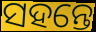
ସହନ୍ତେ